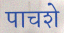
पाचशे